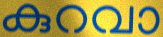
കുറവാ